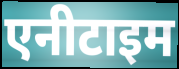
एनीटाइम